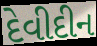
દેવીદીન